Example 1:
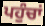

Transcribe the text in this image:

ਪਹੁੰਚਾਂ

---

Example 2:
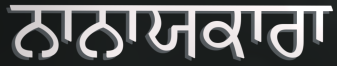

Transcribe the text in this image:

ਨਾਨਾਯਕਾਰਾ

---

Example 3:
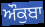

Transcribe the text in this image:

ਔਕੁਬਾ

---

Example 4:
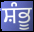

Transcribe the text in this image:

ਸ਼ੰਭੂ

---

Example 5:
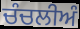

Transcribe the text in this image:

ਚੰਚਲੀਅੰ